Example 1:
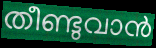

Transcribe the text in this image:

തീണ്ടുവാൻ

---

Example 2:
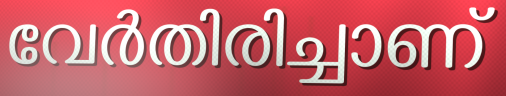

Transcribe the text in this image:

വേർതിരിച്ചാണ്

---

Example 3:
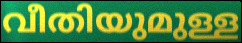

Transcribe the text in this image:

വീതിയുമുള്ള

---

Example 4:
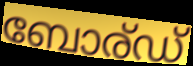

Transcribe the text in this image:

ബോര്ഡ്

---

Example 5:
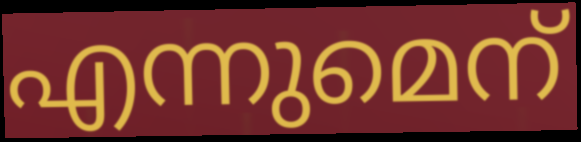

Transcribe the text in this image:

എന്നുമെന്